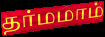
தர்மமாம்